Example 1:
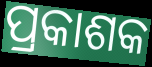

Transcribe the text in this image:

ପ୍ରକାଶକ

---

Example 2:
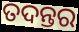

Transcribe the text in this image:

ତଦନ୍ତର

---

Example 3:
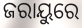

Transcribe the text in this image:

ଜରାୟୁରେ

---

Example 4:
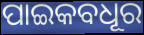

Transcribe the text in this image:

ପାଇକବଧୂର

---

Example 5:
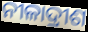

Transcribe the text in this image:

ନୀଳାଦ୍ରୀଶ